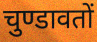
चुण्डावतों